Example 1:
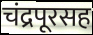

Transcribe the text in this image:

चंद्रपूरसह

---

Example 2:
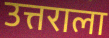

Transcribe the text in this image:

उत्तराला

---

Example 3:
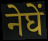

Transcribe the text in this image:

नेघें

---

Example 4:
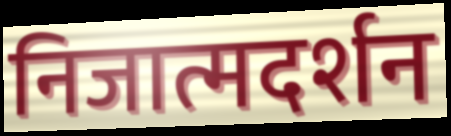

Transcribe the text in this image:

निजात्मदर्शन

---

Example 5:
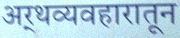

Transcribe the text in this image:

अर्थव्यवहारातून